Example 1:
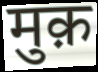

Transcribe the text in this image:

मुक़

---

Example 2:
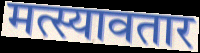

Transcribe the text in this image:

मत्स्यावतार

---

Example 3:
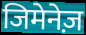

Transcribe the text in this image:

जिमेनेज़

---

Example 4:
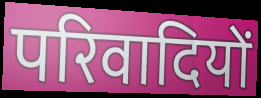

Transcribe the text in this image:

परिवादियों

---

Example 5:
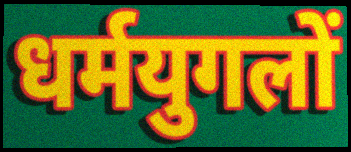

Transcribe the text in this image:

धर्मयुगलों